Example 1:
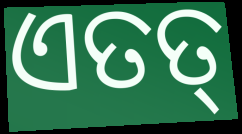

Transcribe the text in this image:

ଏତତ୍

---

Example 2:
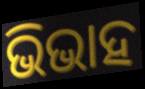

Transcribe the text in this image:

ଭିଭାହ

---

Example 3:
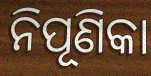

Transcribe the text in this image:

ନିପୂଣିକା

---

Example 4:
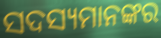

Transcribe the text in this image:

ସଦସ୍ୟମାନଙ୍କର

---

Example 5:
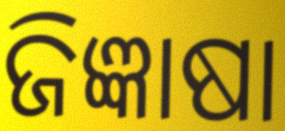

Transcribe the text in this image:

ଜିଜ୍ଞାଷା